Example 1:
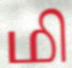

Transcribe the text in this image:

மி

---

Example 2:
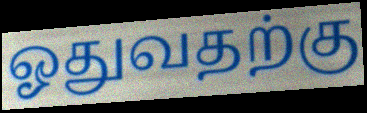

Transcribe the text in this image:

ஓதுவதற்கு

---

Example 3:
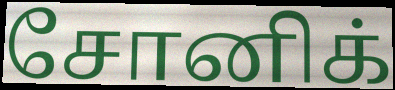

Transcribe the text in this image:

சோனிக்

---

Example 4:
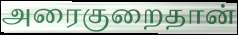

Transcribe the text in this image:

அரைகுறைதான்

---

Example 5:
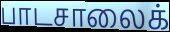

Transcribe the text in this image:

பாடசாலைக்